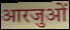
आरजुओं